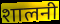
शालनी